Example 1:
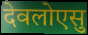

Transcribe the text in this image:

देवलोएसु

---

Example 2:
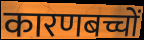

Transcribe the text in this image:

कारणबच्चों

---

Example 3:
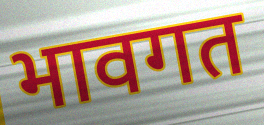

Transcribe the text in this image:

भावगत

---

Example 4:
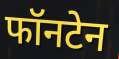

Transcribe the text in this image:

फॉनटेन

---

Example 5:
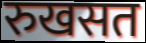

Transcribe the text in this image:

रुखसत